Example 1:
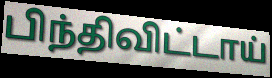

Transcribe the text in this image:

பிந்திவிட்டாய்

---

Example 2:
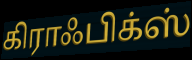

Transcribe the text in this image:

கிராஃபிக்ஸ்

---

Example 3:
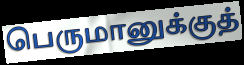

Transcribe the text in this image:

பெருமானுக்குத்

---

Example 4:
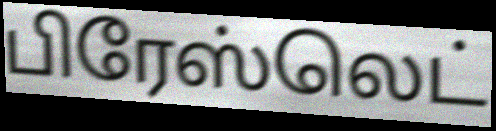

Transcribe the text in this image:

பிரேஸ்லெட்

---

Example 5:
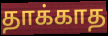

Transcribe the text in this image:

தாக்காத